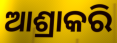
ଆଶ୍ରାକରି